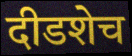
दीडशेच